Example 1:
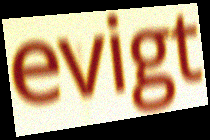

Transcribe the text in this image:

evigt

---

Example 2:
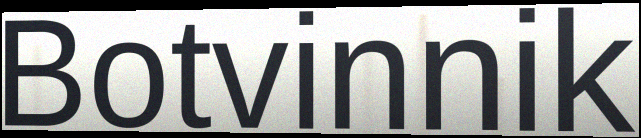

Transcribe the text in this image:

Botvinnik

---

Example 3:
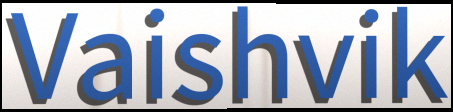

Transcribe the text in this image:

Vaishvik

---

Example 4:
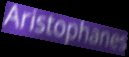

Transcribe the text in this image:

Aristophanes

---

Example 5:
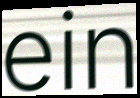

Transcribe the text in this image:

ein